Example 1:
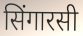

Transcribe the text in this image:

सिंगारसी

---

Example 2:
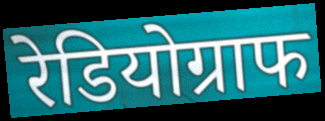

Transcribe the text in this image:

रेडियोग्राफ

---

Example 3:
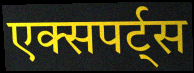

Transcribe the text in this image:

एक्‍सपर्ट्स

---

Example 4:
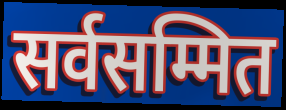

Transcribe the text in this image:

सर्वसम्मित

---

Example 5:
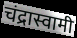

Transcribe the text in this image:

चंद्रास्वामी